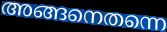
അങ്ങനെതന്നെ